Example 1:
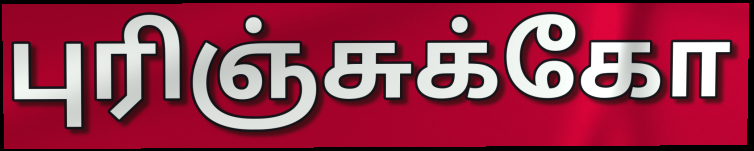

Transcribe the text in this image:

புரிஞ்சுக்கோ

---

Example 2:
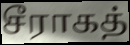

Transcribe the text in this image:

சீராகத்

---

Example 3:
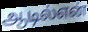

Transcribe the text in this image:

ஆடில்என்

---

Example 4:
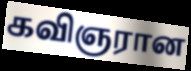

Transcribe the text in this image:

கவிஞரான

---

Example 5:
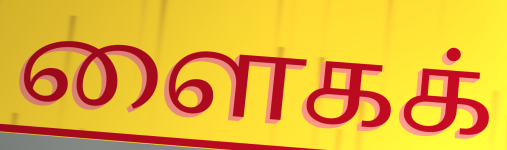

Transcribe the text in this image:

ளைகக்